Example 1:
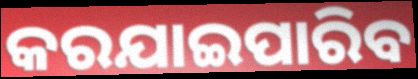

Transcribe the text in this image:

କରଯାଇପାରିବ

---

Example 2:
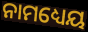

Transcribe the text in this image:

ନାମଧ୍ୟେୟ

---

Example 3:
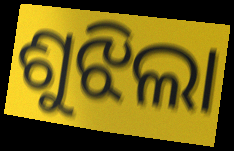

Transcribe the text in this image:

ଶୁଝିଲା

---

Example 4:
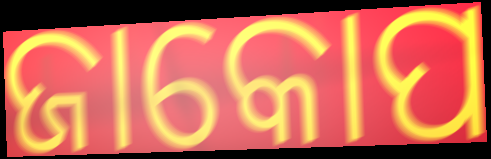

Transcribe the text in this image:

ଜାକୋପ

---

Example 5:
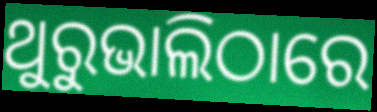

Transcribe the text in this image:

ଥୁରୁଭାଲିଠାରେ